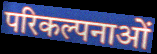
परिकल्पनाओं